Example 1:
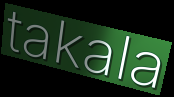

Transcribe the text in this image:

takala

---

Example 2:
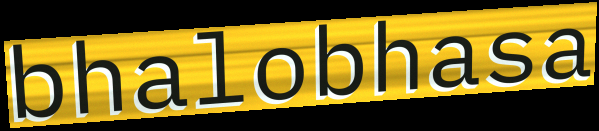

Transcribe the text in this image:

bhalobhasa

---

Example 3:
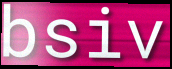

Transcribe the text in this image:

bsiv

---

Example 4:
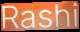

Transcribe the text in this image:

Rashi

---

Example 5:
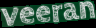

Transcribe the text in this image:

veeran